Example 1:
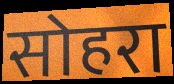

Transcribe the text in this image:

सोहरा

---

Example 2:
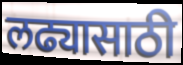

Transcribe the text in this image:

लढ्यासाठी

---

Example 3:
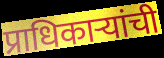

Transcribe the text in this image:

प्राधिकाऱ्यांची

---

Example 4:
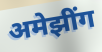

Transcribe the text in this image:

अमेझींग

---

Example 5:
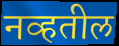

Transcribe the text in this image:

नव्हतील